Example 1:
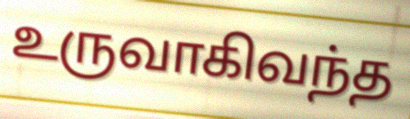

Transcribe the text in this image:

உருவாகிவந்த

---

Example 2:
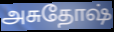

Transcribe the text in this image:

அசுதோஷ்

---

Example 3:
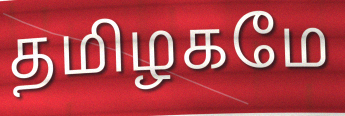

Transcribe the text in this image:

தமிழகமே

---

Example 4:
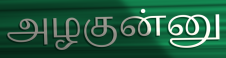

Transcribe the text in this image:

அழகுன்னு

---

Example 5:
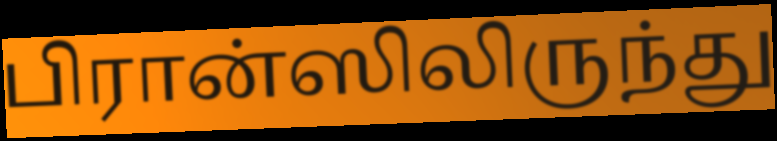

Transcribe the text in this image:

பிரான்ஸிலிருந்து